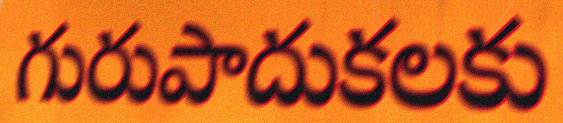
గురుపాదుకలకు